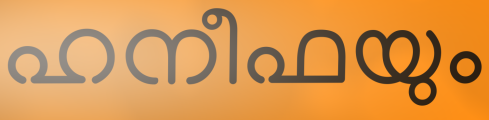
ഹനീഫയും